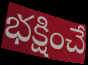
భక్షించే